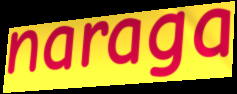
naraga